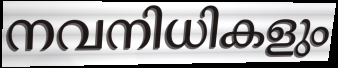
നവനിധികളും